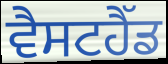
ਵੈਸਟਹੈੱਡ